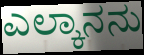
ಎಲ್ಕಾನನು